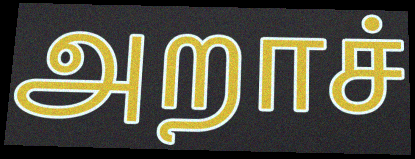
அறாச்